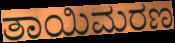
ತಾಯಿಮರಣ